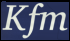
Kfm